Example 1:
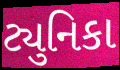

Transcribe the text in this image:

ટ્યુનિકા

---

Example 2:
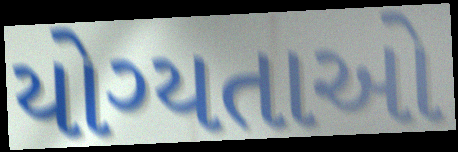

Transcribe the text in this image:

યોગ્યતાઓ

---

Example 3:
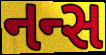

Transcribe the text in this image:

નન્સ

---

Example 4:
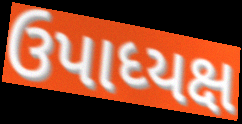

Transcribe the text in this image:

ઉપાધ્યક્ષ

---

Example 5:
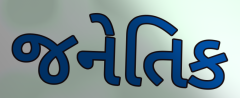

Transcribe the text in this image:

જનેતિક